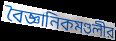
বৈজ্ঞানিকমণ্ডলীর